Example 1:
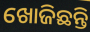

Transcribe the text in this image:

ଖୋଜିଛନ୍ତି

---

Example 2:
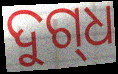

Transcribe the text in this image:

ଦୁଗ୍‌ଧ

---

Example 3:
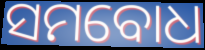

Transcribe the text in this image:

ସମବୋଧ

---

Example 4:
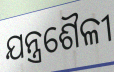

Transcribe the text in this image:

ଯନ୍ତ୍ରଶୈଳୀ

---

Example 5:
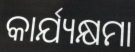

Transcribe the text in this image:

କାର୍ଯ୍ୟକ୍ଷମା